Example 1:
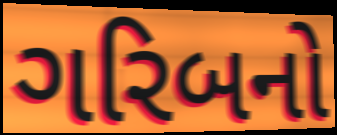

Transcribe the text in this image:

ગરિબનો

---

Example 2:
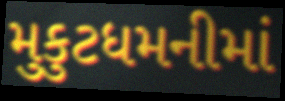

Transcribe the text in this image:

મુકુટધમનીમાં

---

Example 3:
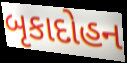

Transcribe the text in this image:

બૃકાદોહન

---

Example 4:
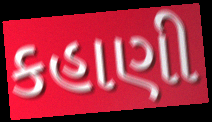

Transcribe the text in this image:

કહાણી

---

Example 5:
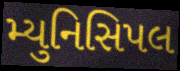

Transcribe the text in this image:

મ્યુનિસિપલ